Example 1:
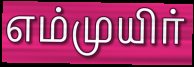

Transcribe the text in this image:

எம்முயிர்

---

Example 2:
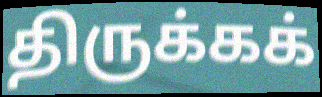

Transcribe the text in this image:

திருக்கக்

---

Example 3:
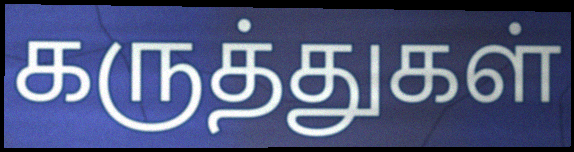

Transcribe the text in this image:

கருத்துகள்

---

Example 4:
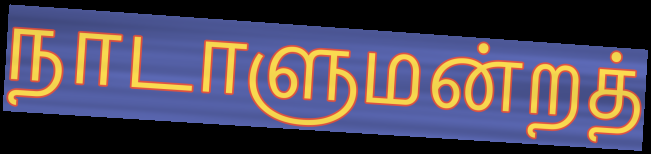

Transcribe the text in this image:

நாடாளுமன்றத்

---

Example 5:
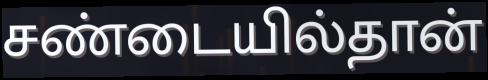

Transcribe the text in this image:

சண்டையில்தான்